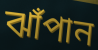
ঝাঁপান